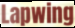
Lapwing